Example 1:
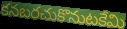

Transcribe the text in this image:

కనబరచుకొనుటకేమి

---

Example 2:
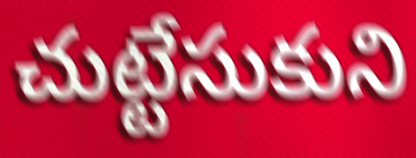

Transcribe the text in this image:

చుట్టేసుకుని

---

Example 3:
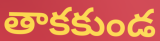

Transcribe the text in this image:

తాకకుండ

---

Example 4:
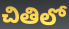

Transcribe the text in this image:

చితిలో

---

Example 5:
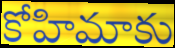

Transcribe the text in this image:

కోహిమాకు